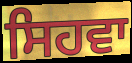
ਸਿਹਵਾ